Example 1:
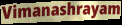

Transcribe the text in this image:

Vimanashrayam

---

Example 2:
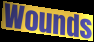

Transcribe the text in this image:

Wounds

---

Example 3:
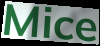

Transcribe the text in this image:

Mice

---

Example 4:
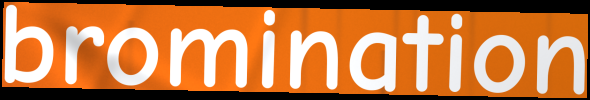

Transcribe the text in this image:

bromination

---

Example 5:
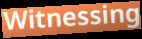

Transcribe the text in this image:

Witnessing